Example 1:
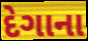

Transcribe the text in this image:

દેગાના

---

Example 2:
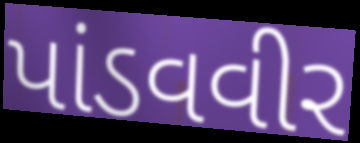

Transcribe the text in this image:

પાંડવવીર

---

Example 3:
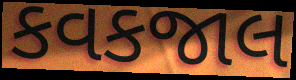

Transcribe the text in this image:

કવકજાલ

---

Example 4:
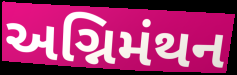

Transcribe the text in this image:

અગ્નિમંથન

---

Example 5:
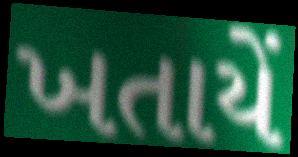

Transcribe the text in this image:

ખતાયેં